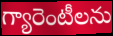
గ్యారెంటీలను